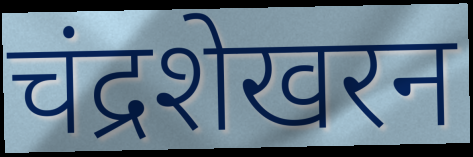
चंद्रशेखरन